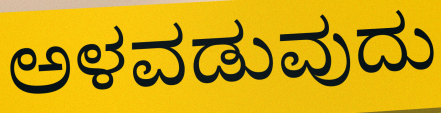
ಅಳವಡುವುದು